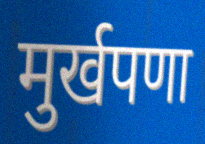
मुर्खपणा